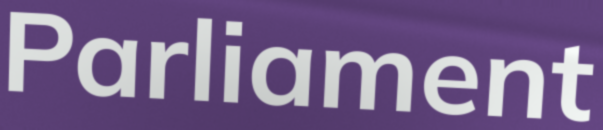
Parliament